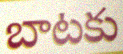
బాటకు